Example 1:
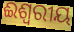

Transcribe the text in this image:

ଈଶ୍ବରୀୟ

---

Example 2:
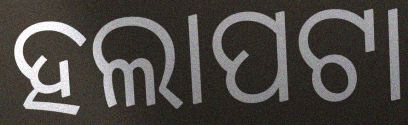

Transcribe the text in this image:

ହଲାପଟା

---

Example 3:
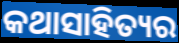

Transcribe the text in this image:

କଥାସାହିତ୍ୟର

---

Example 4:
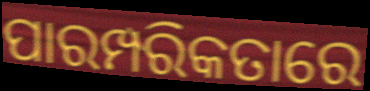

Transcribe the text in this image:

ପାରମ୍ପରିକତାରେ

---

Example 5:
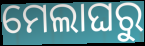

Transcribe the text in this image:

ମେଲାଘରୁ